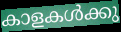
കാളകൾക്കു